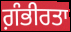
ਗ਼ੰਭੀਰਤਾ